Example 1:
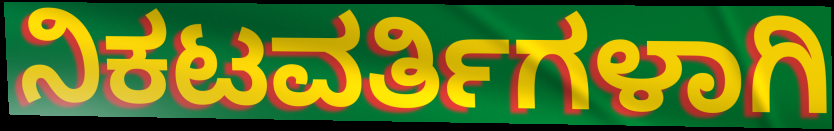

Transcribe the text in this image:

ನಿಕಟವರ್ತಿಗಳಾಗಿ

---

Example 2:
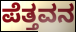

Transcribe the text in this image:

ಪೆತ್ತವನ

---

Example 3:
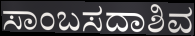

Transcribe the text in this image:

ಸಾಂಬಸದಾಶಿವ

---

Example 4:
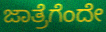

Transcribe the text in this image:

ಜಾತ್ರೆಗೆಂದೇ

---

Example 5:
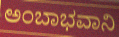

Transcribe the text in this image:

ಅಂಬಾಭವಾನಿ